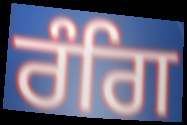
ਰੰਗਿ